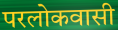
परलोकवासी